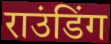
राउंडिंग